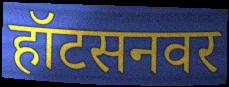
हॉटसनवर